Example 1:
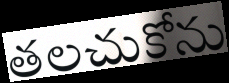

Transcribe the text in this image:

తలచుకోను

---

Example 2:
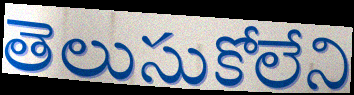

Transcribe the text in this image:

తెలుసుకోలేని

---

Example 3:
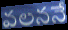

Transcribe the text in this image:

వలననే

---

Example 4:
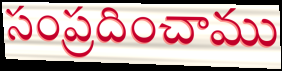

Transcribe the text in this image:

సంప్రదించాము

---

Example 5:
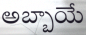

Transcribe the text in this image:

అబ్బాయే